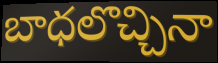
బాధలొచ్చినా